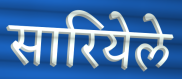
सारियेले